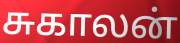
சுகாலன்